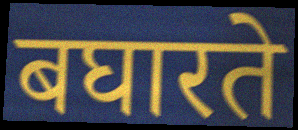
बघारते